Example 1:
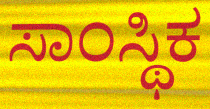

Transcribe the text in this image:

ಸಾಂಸ್ಥಿಕ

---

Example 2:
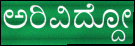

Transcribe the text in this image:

ಅರಿವಿದ್ದೋ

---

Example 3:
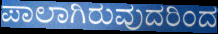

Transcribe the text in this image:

ಪಾಲಾಗಿರುವುದರಿಂದ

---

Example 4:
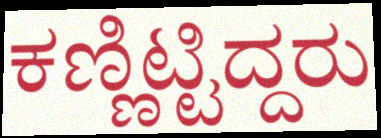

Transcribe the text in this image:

ಕಣ್ಣಿಟ್ಟಿದ್ದರು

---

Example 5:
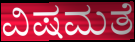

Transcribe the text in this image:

ವಿಷಮತೆ